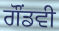
ਗੌਂਡਵੀ